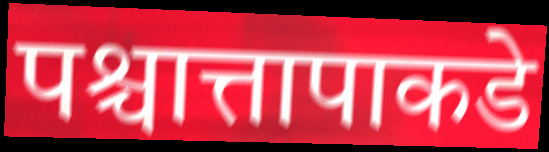
पश्चात्तापाकडे